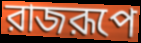
রাজরূপে